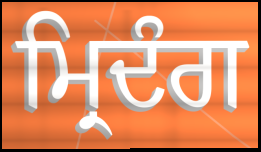
ਮ੍ਰਿਦੰਗ